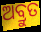
ଅବ୍ରୁତ